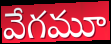
వేగమూ